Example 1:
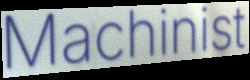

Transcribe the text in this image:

Machinist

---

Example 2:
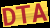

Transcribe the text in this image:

DTA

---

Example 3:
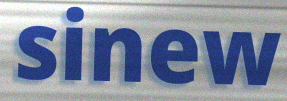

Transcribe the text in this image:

sinew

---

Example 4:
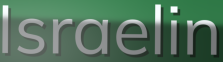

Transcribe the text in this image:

Israelin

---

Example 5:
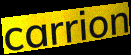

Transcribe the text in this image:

carrion